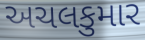
અચલકુમાર